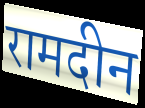
रामदीन